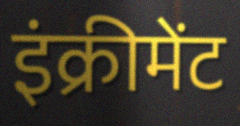
इंक्रीमेंट